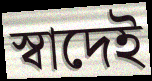
স্বাদেই